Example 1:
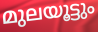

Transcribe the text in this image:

മുലയൂട്ടും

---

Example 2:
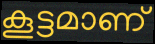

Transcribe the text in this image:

കൂട്ടമാണ്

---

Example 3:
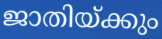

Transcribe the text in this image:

ജാതിയ്ക്കും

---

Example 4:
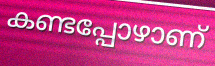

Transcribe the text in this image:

കണ്ടപ്പോഴാണ്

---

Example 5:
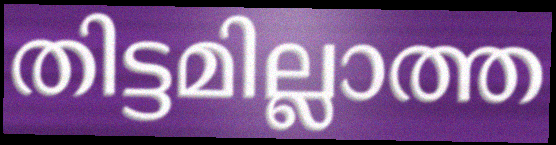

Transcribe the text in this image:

തിട്ടമില്ലാത്ത